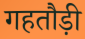
गहतौड़ी